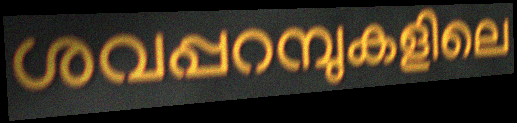
ശവപ്പറമ്പുകളിലെ